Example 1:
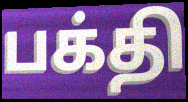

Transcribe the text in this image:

பக்தி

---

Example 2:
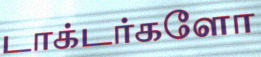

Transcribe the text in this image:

டாக்டர்களோ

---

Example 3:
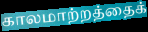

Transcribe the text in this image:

காலமாற்றத்தைக்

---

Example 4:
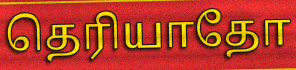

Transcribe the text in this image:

தெரியாதோ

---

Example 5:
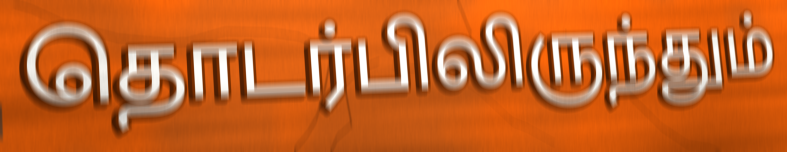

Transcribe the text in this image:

தொடர்பிலிருந்தும்